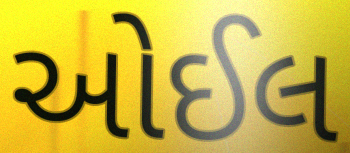
ઓઈલ